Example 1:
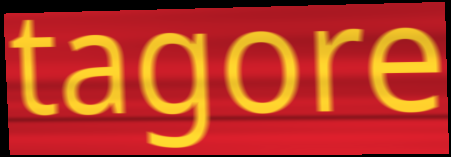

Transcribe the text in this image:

tagore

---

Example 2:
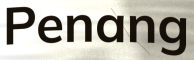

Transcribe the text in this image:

Penang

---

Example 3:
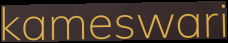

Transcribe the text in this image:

kameswari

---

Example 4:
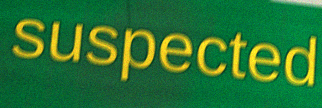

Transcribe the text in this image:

suspected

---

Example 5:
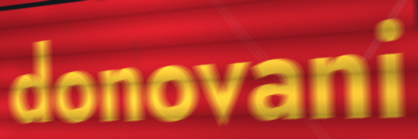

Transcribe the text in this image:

donovani